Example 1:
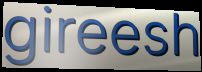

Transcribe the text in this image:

gireesh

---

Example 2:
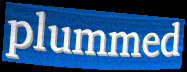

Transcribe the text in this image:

plummed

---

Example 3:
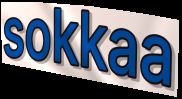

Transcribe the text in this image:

sokkaa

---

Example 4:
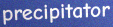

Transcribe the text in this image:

precipitator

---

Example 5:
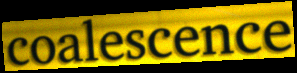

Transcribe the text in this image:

coalescence